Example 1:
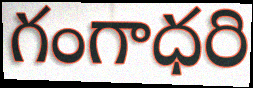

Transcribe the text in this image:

గంగాధరి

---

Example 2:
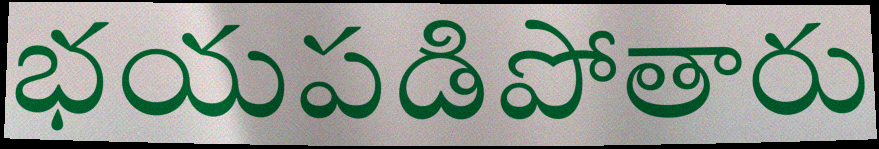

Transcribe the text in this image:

భయపడిపోతారు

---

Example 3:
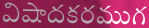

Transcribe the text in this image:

విషాదకరముగ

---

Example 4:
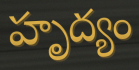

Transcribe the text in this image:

హృద్యం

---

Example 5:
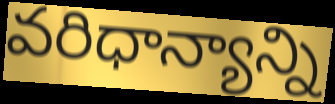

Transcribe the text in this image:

వరిధాన్యాన్ని